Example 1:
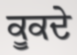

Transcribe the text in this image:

ਕੂਕਦੇ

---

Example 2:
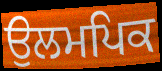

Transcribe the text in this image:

ਉਲਮਪਿਕ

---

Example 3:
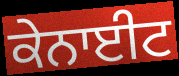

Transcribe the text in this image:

ਕੇਨਾਈਟ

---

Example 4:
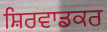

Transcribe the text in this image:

ਸ਼ਿਰਵਾਡਕਰ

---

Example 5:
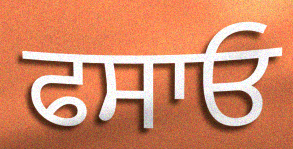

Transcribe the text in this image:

ਫਸਾਓ